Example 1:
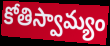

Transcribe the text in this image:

కోతిస్వామ్యం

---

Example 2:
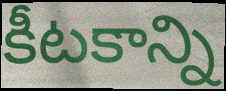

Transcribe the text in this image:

కీటకాన్ని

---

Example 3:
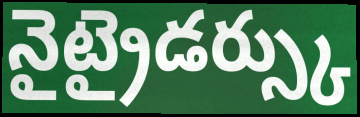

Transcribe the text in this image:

నైట్రైడర్స్కు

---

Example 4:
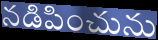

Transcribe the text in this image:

నడిపించును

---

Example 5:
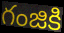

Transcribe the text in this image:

గంజికి